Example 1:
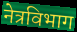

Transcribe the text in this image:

नेत्रविभाग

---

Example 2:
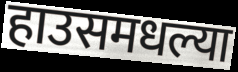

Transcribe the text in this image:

हाउसमधल्या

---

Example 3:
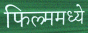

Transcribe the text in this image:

फिल्ममध्ये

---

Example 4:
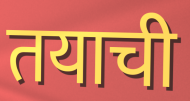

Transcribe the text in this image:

तयाची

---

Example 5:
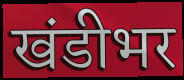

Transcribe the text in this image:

खंडीभर